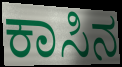
ಕಾಸಿನ